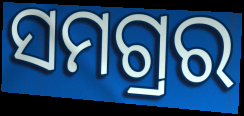
ସମଗ୍ରର